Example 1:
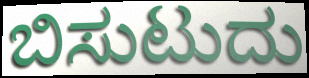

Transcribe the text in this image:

ಬಿಸುಟುದು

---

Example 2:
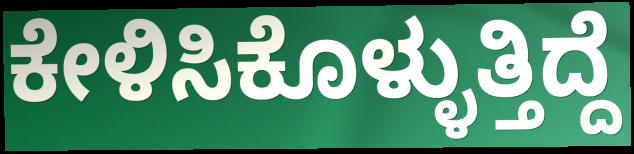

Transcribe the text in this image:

ಕೇಳಿಸಿಕೊಳ್ಳುತ್ತಿದ್ದೆ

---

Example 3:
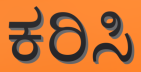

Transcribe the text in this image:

ಕರಿಸಿ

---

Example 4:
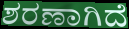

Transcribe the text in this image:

ಶರಣಾಗಿದೆ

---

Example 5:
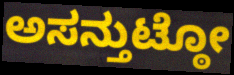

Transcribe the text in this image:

ಅಸನ್ತುಟ್ಠೋ